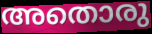
അതൊരു